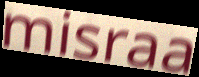
misraa